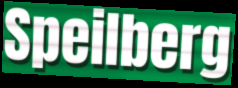
Speilberg